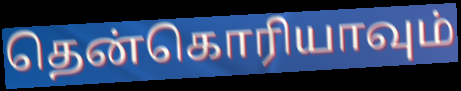
தென்கொரியாவும்